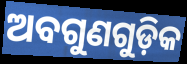
ଅବଗୁଣଗୁଡ଼ିକ